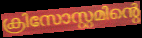
ക്രിസോസ്റ്റമിന്റെ